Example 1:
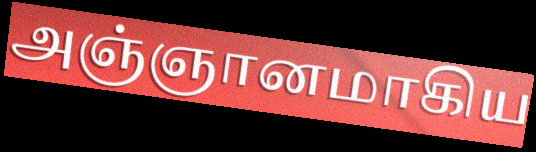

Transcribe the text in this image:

அஞ்ஞானமாகிய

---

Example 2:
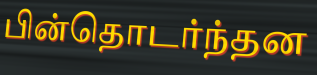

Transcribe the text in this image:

பின்தொடர்ந்தன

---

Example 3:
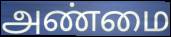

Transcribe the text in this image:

அண்மை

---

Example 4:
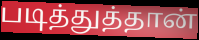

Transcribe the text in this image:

படித்துத்தான்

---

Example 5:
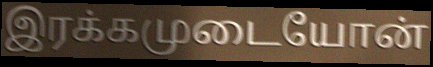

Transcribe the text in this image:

இரக்கமுடையோன்